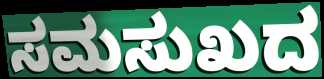
ಸಮಸುಖದ